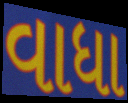
વાધા